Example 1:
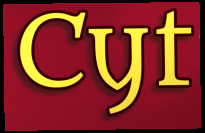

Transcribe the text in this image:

Cyt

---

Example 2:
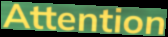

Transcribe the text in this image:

Attention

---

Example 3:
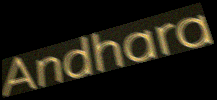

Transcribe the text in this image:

Andhara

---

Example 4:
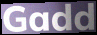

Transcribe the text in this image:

Gadd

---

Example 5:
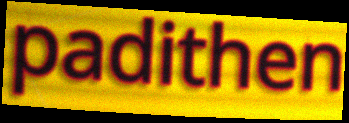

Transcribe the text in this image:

padithen